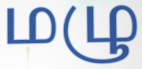
மழு